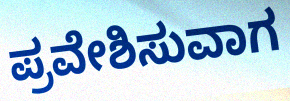
ಪ್ರವೇಶಿಸುವಾಗ